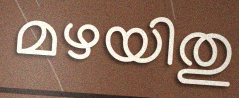
മഴയിതു